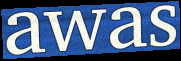
awas